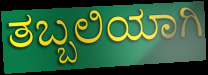
ತಬ್ಬಲಿಯಾಗಿ